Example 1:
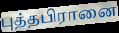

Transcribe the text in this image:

புத்தபிரானை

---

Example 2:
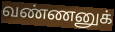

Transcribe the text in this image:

வண்ணனுக்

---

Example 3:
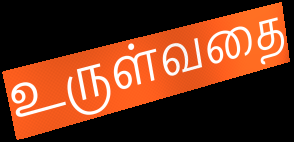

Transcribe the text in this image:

உருள்வதை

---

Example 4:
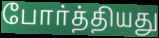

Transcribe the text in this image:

போர்த்தியது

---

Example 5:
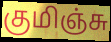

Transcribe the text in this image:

குமிஞ்சு